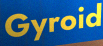
Gyroid